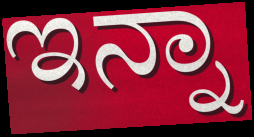
ಇನ್ನಾ